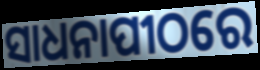
ସାଧନାପୀଠରେ